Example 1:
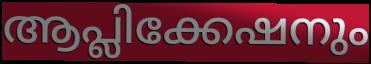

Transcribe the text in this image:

ആപ്ലിക്കേഷനും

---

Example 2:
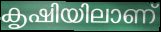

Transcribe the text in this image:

കൃഷിയിലാണ്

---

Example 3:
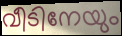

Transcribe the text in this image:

വീടിനേയും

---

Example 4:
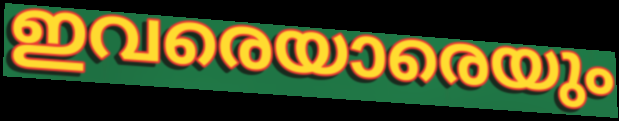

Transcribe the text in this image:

ഇവരെയാരെയും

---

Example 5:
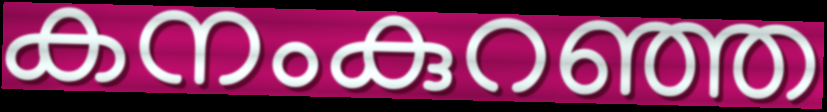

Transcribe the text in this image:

കനംകുറഞ്ഞ